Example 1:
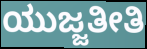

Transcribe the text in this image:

ಯುಜ್ಜತೀತಿ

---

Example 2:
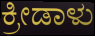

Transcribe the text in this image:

ಕ್ರೀಡಾಳು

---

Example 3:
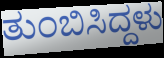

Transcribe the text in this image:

ತುಂಬಿಸಿದ್ದಳು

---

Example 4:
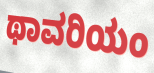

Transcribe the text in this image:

ಥಾವರಿಯಂ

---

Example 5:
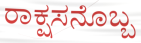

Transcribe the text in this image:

ರಾಕ್ಷಸನೊಬ್ಬ